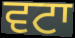
ਵਟਾ